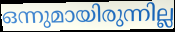
ഒന്നുമായിരുന്നില്ല